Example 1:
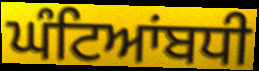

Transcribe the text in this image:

ਘੰਟਿਆਂਬਧੀ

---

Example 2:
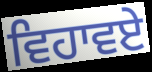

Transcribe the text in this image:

ਵਿਹਾਵਏ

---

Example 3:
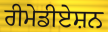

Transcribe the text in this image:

ਰੀਮੇਡੀਏਸ਼ਨ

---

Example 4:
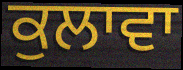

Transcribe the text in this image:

ਕੁਲਾਵਾ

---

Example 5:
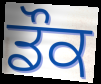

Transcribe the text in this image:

ਡੌਕ